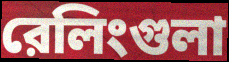
রেলিংগুলা